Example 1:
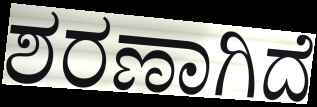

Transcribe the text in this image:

ಶರಣಾಗಿದೆ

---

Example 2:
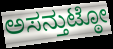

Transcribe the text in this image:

ಅಸನ್ತುಟ್ಠೋ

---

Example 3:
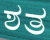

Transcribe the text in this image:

ಶತ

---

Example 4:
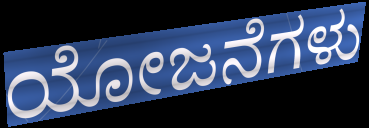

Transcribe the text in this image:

ಯೋಜನೆಗಳು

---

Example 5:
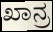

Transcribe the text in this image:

ಖಾನ್ರ